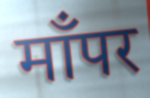
माँपर